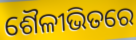
ଶୈଳୀଭିତରେ